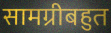
सामग्रीबहुत